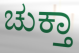
ಚುಕ್ತಾ